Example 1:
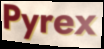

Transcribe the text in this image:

Pyrex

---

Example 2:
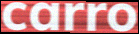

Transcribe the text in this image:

carro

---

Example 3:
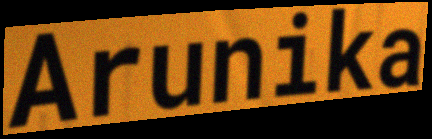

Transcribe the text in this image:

Arunika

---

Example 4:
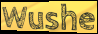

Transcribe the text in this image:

Wushe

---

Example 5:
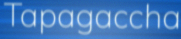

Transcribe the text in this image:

Tapagaccha